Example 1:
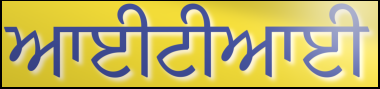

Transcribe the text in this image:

ਆਈਟੀਆਈ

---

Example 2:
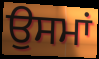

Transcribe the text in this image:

ਉਸਮਾਂ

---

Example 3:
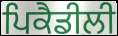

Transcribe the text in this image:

ਪਿਕੈਡੀਲੀ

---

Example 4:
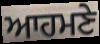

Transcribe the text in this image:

ਆਹਮਣੇ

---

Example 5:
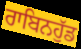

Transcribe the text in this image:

ਰਾਬਿਨਹੁੱਡ